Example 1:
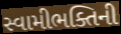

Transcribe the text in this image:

સ્વામીભક્તિની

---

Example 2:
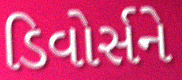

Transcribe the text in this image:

ડિવોર્સને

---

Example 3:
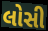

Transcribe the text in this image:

લોસી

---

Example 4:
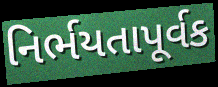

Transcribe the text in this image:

નિર્ભયતાપૂર્વક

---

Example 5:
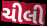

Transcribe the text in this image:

ચીલી